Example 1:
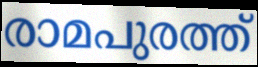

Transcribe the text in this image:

രാമപുരത്ത്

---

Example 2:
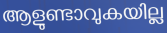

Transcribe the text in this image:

ആളുണ്ടാവുകയില്ല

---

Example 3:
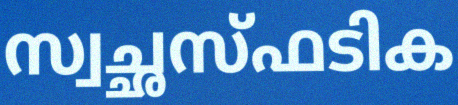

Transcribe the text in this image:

സ്വച്ഛസ്ഫടിക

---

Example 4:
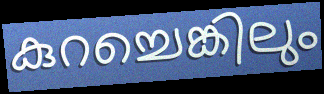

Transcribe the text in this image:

കുറച്ചെങ്കിലും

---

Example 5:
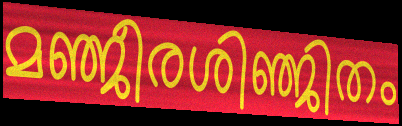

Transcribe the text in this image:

മഞ്ജീരശിഞ്ജിതം